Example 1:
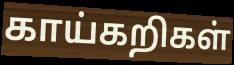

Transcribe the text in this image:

காய்கறிகள்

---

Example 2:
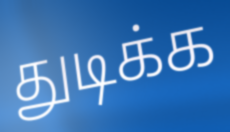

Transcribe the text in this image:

துடிக்க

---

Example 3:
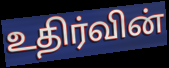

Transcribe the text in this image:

உதிர்வின்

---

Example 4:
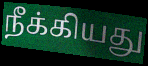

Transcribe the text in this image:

நீக்கியது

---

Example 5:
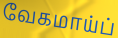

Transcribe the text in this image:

வேகமாய்ப்